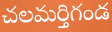
చలమర్తిగండ